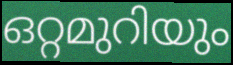
ഒറ്റമുറിയും